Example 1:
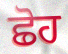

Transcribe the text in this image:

ਛੋਹ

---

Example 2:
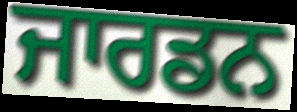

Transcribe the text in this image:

ਜਾਰਡਨ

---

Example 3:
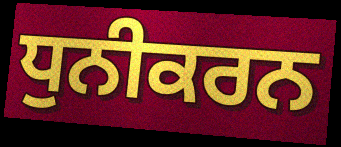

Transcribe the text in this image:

ਧੁਨੀਕਰਨ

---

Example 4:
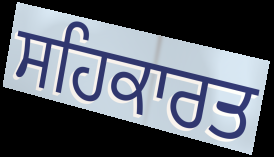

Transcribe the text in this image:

ਸਹਿਕਾਰਤ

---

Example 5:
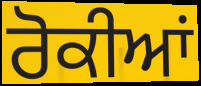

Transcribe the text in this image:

ਰੋਕੀਆਂ